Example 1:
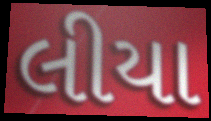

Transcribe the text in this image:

લીયા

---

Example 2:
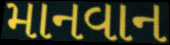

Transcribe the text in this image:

માનવાન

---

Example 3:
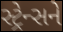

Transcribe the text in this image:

સ્ટ્રેન્સને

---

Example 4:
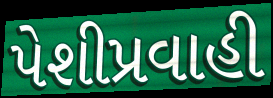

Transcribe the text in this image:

પેશીપ્રવાહી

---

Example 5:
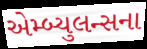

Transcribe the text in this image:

એમ્બ્યુલન્સના